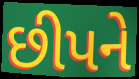
છીપને